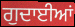
ਗੁਦਾਈਆਂ